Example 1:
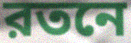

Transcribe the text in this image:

রতনে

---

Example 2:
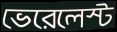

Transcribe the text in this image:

ভেরেলেস্ট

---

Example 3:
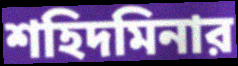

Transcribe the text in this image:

শহিদমিনার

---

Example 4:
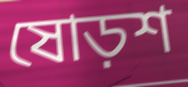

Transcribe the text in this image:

ষোড়শ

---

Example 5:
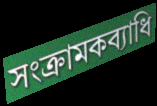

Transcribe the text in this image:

সংক্রামকব্যাধি